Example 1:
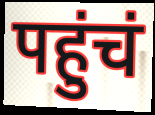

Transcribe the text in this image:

पहुंचं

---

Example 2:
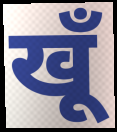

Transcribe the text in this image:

खूँ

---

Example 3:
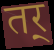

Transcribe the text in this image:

तर्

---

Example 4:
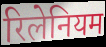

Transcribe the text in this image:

रिलेनियम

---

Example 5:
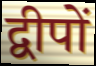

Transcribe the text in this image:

द्वीपों